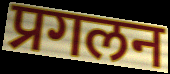
प्रगलन